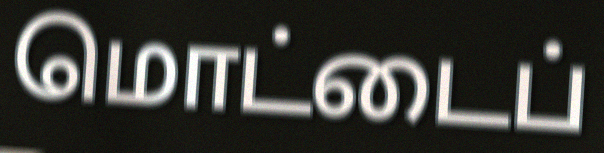
மொட்டைப்